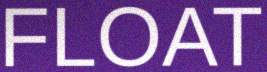
FLOAT